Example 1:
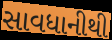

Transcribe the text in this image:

સાવધાનીથી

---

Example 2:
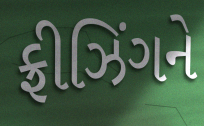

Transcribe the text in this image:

ફ્રીઝિંગને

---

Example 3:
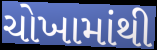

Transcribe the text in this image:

ચોખામાંથી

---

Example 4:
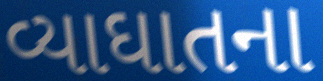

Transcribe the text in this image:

વ્યાઘાતના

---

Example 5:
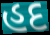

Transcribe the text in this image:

હદ